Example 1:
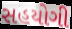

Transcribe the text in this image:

સહયોગી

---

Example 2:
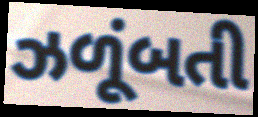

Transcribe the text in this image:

ઝળૂંબતી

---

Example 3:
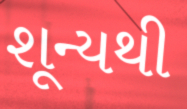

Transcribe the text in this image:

શૂન્યથી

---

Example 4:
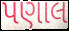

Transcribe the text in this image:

પણાલ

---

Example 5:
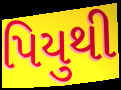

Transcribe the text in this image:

પિયુથી